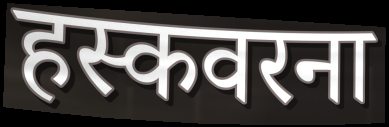
हस्कवरना